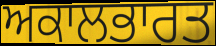
ਅਕਾਲਭਾਰਤ